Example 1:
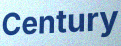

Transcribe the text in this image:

Century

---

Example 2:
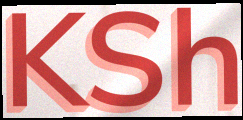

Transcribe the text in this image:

KSh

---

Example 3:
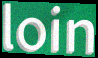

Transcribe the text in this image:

loin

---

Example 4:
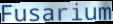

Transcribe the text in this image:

Fusarium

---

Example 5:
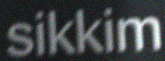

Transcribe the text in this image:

sikkim